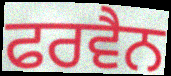
ਫਰਵੈਨ